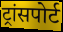
ट्रांसपोर्ट